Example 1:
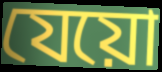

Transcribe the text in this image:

যেয়ো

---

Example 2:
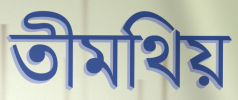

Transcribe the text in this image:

তীমথিয়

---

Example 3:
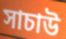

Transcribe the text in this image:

সাচাউ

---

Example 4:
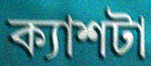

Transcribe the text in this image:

ক্যাশটা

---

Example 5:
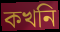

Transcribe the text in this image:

কখনি